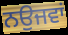
ਨਉਜਵਾਂ